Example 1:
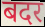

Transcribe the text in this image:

बदर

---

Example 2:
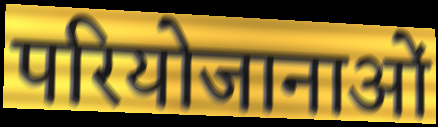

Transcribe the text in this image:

परियोजानाओं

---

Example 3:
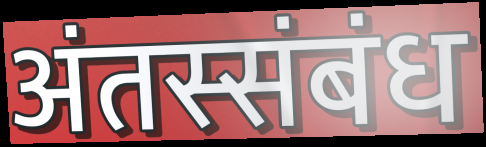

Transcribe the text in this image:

अंतस्संबंध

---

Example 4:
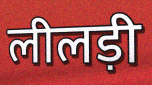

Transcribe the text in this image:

लीलड़ी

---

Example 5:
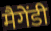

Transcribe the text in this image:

मैगेंडी